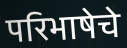
परिभाषेचे